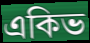
একিভ